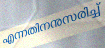
എന്നതിനനുസരിച്ച്